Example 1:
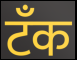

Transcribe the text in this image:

टॅंक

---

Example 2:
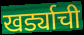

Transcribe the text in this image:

खर्ड्याची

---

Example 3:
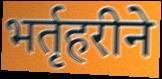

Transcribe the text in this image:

भर्तृहरीने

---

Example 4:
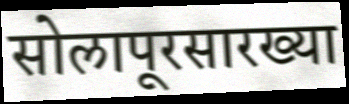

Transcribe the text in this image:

सोलापूरसारख्या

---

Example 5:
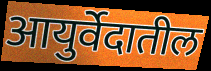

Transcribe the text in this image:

आयुर्वेदातील